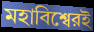
মহাবিশ্বেরই